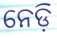
ନେଡ଼ି